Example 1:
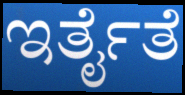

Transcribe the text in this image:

ಇರ್ತೈತೆ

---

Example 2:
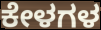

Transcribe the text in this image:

ಕೇಳಗಳ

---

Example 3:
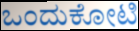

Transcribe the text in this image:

ಒಂದುಕೋಟಿ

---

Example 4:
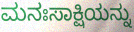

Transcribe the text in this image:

ಮನಃಸಾಕ್ಷಿಯನ್ನು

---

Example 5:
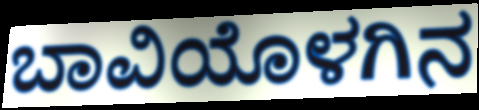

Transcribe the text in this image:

ಬಾವಿಯೊಳಗಿನ